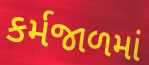
કર્મજાળમાં